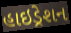
હાઇડ્રેશન